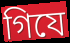
গিযে